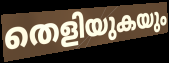
തെളിയുകയും